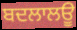
ਬਦਲਾਲਊ